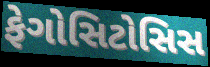
ફેગોસિટોસિસ